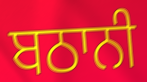
ਬਠਾਨੀ